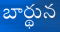
బార్థున